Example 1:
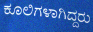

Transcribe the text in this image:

ಕೂಲಿಗಳಾಗಿದ್ದರು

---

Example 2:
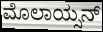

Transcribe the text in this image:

ಮೊಲಾಯ್ಸನ್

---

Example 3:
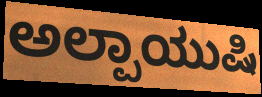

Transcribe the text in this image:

ಅಲ್ಪಾಯುಷಿ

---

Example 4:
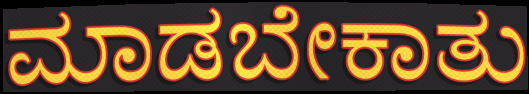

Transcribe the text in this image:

ಮಾಡಬೇಕಾತು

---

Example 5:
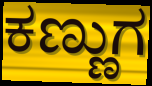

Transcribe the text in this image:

ಕಣ್ಣುಗ